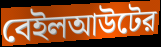
বেইলআউটের